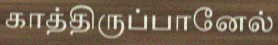
காத்திருப்பானேல்